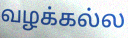
வழக்கல்ல